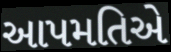
આપમતિએ